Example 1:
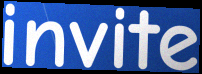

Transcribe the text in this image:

invite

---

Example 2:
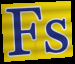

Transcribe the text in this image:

Fs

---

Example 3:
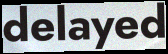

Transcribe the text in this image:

delayed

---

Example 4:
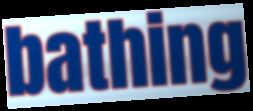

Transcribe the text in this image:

bathing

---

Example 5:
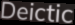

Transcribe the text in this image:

Deictic